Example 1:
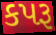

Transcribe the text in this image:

કપરૂ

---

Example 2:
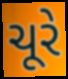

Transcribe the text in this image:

ચૂરે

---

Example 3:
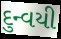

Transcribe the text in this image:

દુન્વયી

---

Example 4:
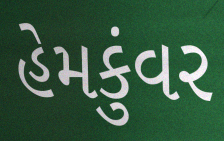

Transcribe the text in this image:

હેમકુંવર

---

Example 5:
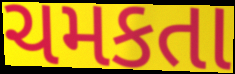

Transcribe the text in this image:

ચમકતા